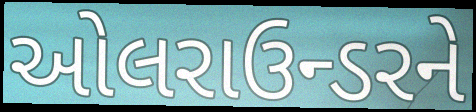
ઓલરાઉન્ડરને